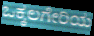
ಒಕ್ಕಲಗೇರಿಯ